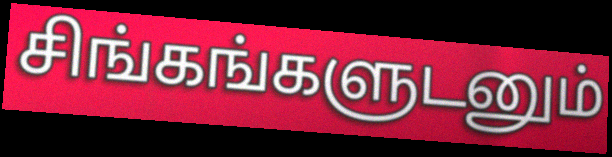
சிங்கங்களுடனும்